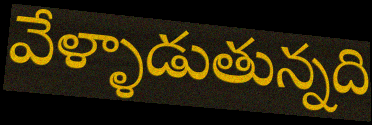
వేళ్ళాడుతున్నది